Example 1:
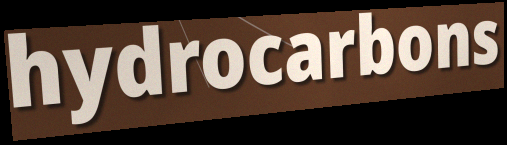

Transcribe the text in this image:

hydrocarbons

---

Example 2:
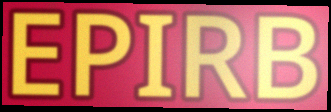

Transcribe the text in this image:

EPIRB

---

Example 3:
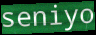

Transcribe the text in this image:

seniyo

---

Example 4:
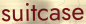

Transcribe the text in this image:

suitcase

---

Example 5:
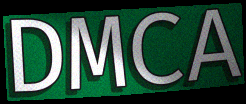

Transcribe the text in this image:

DMCA